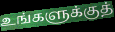
உங்களுக்குத்